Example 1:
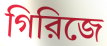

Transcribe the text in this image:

গিরিজে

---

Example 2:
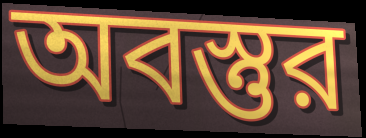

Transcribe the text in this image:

অবস্তুর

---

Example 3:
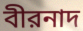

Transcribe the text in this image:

বীরনাদ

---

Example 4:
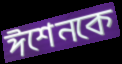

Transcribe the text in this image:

ঈশেনকে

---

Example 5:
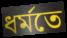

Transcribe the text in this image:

ধর্মতে